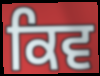
ਕਿਵ